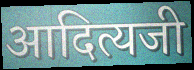
आदित्यजी